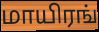
மாயிரங்